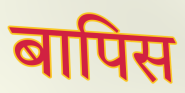
बापिस